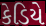
કેડિયે